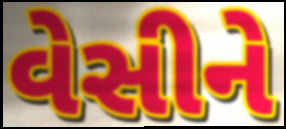
વેસીને